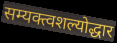
सम्यक्त्वशल्योद्धार